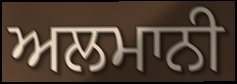
ਅਲਮਾਨੀ